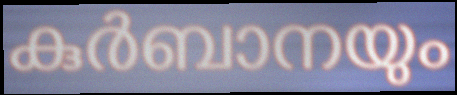
കുർബാനയും